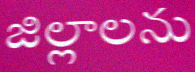
జిల్లాలను